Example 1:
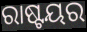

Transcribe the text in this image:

ରାଷ୍ଟୟର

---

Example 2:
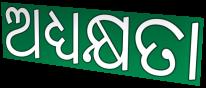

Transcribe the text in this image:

ଅଧ୍ୟକ୍ଷତା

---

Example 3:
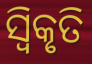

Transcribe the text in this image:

ସ୍ଵିକୃତି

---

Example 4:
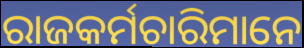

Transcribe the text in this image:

ରାଜକର୍ମଚାରିମାନେ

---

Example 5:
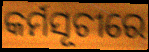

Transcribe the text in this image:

କର୍ମସୂଚୀରେ